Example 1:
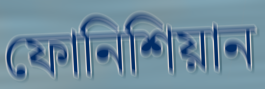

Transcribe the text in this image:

ফোনিশিয়ান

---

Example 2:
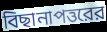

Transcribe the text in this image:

বিছানাপত্তরের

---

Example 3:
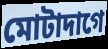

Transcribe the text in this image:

মোটাদাগে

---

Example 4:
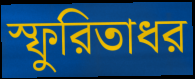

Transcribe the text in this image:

স্ফুরিতাধর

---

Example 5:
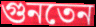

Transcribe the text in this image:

গুনতেন